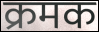
क्रमक